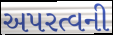
અપરત્વની